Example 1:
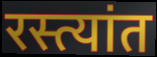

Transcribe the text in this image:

रस्त्यांत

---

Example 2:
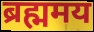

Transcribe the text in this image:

ब्रह्ममय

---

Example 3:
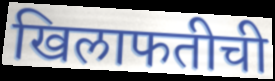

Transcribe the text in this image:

खिलाफतीची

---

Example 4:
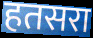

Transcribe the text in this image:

हतसरा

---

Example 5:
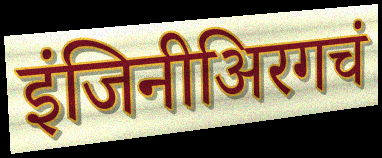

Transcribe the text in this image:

इंजिनीअिरगचं